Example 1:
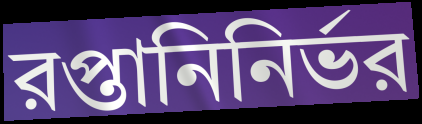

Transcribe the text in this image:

রপ্তানিনির্ভর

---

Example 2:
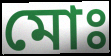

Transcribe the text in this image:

মোঃ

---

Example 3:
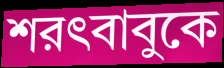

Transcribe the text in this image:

শরৎবাবুকে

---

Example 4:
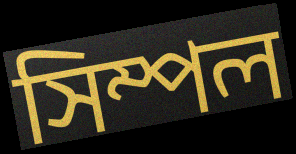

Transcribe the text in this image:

সিম্পল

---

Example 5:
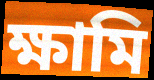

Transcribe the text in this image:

ক্ষামি